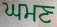
ਘਮਣ